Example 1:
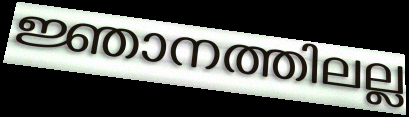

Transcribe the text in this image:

ജ്ഞാനത്തിലല്ല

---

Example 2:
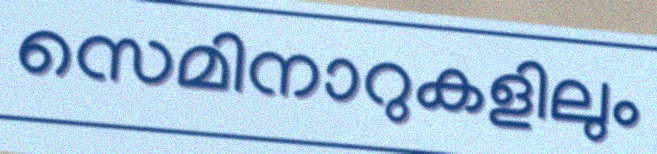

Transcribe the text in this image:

സെമിനാറുകളിലും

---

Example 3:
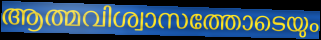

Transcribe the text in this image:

ആത്മവിശ്വാസത്തോടെയും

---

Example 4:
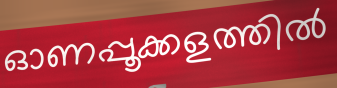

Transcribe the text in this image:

ഓണപ്പൂക്കളത്തിൽ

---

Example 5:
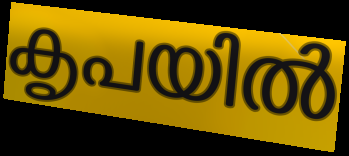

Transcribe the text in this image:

കൃപയിൽ